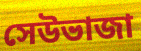
সেউভাজা